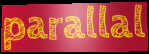
parallal